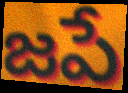
జపే